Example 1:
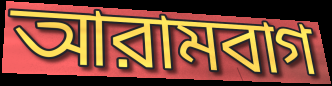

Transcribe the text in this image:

আরামবাগ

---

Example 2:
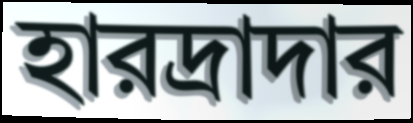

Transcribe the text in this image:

হারদ্রাদার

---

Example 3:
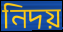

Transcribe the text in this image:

নিদয়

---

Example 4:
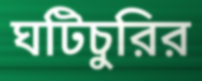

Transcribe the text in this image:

ঘটিচুরির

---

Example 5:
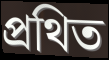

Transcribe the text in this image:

প্রথিত